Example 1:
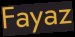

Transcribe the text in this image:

Fayaz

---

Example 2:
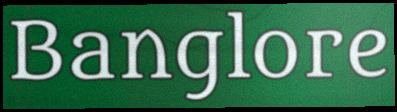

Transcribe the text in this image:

Banglore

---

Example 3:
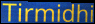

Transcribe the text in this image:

Tirmidhi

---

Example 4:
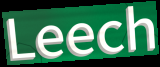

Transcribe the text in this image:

Leech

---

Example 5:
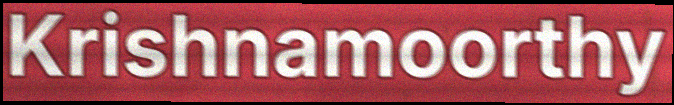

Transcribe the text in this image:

Krishnamoorthy